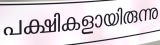
പക്ഷികളായിരുന്നു